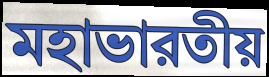
মহাভারতীয়